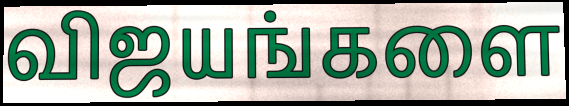
விஜயங்களை